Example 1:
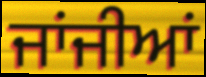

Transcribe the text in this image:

ਜਾਂਜੀਆਂ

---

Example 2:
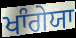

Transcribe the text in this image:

ਖਾੰਗੇਯਾ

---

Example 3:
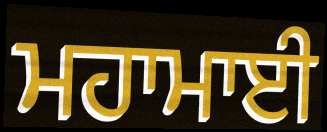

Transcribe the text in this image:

ਮਹਾਮਾਈ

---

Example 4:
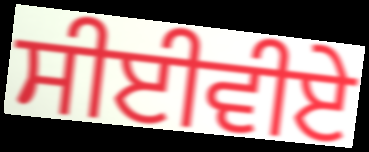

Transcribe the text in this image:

ਸੀਈਵੀਏ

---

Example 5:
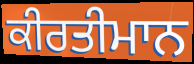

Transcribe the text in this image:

ਕੀਰਤੀਮਾਨ